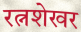
रत्नशेखर